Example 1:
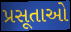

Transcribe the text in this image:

પ્રસૂતાઓ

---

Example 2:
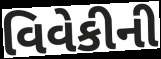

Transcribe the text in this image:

વિવેકીની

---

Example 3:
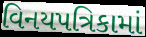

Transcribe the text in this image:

વિનયપત્રિકામાં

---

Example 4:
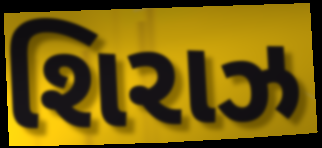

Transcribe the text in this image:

શિરાઝ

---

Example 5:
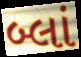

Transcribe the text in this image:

બ્લાં